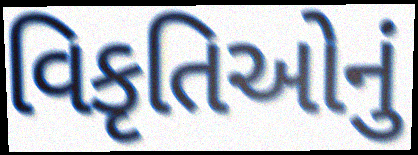
વિકૃતિઓનું